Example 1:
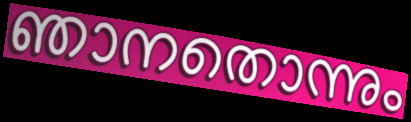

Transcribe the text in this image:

ഞാനതൊന്നും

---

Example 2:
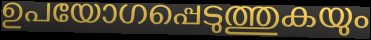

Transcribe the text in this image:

ഉപയോഗപ്പെടുത്തുകയും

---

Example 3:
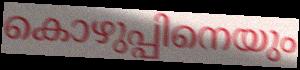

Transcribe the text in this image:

കൊഴുപ്പിനെയും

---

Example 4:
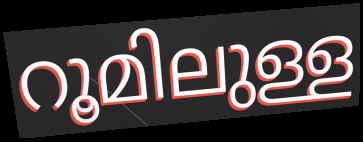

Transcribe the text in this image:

റൂമിലുള്ള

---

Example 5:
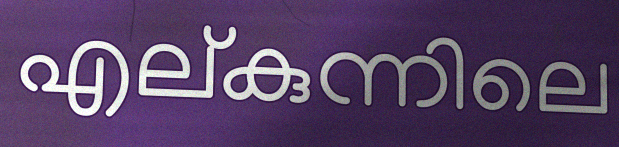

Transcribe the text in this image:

എല്കുന്നിലെ